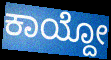
ಕಾಯ್ದೋ